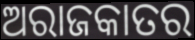
ଅରାଜକାତର